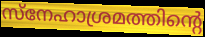
സ്നേഹാശ്രമത്തിന്റെ